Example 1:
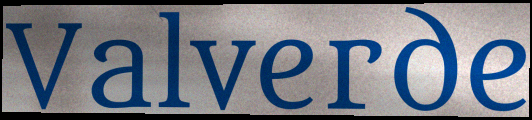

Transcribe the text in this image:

Valverde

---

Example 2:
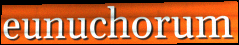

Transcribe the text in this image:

eunuchorum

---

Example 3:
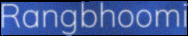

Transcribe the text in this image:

Rangbhoomi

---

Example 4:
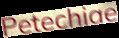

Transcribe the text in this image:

Petechiae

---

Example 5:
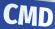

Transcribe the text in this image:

CMD